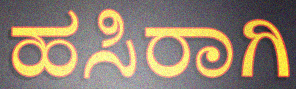
ಹಸಿರಾಗಿ